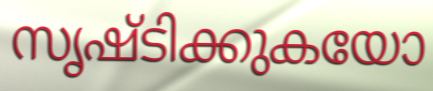
സൃഷ്ടിക്കുകയോ